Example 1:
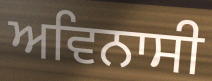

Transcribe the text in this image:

ਅਵਿਨਾਸੀ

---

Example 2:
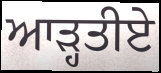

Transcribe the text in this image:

ਆੜ੍ਹਤੀਏ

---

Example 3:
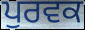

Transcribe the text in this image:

ਪੁਰਵਕ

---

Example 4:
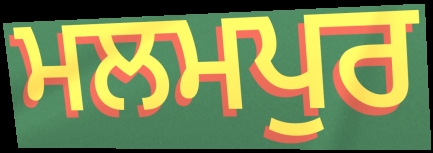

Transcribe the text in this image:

ਮਲਮਪੁਰ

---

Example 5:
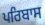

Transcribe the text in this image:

ਪਰਿਬਾਸ